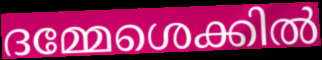
ദമ്മേശെക്കിൽ